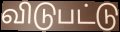
விடுபட்டு